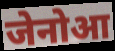
जेनोआ